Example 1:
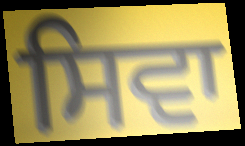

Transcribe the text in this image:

ਸਿਵਾ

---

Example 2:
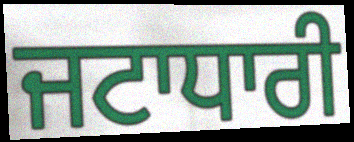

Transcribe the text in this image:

ਜਟਾਧਾਰੀ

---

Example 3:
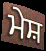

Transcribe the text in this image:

ਮੇਸ਼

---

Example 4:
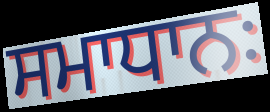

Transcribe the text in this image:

ਸਮਾਧਾਨਃ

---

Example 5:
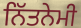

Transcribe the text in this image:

ਨਿੱਤਨੇਮੀ